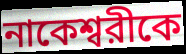
নাকেশ্বরীকে